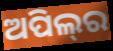
ଅପିଲ୍‍ର